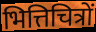
भित्तिचित्रों